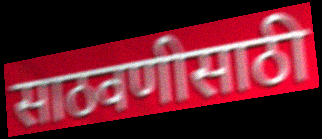
साठवणीसाठी